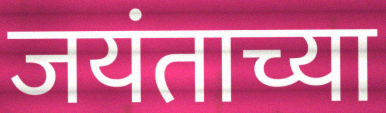
जयंताच्या